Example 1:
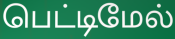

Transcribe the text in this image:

பெட்டிமேல்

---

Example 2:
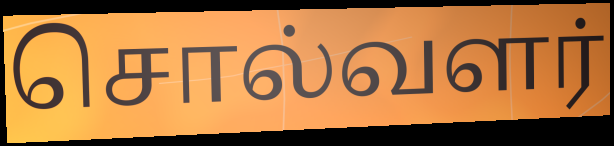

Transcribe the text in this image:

சொல்வளர்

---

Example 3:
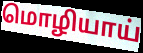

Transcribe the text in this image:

மொழியாய்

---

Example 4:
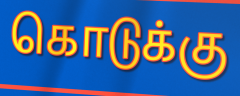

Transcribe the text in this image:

கொடுக்கு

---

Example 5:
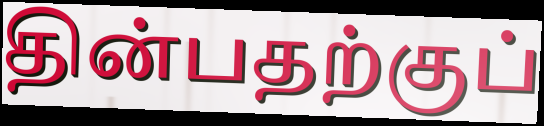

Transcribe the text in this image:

தின்பதற்குப்